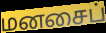
மனசைப்